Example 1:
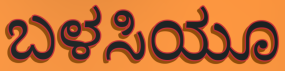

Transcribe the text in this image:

ಬಳಸಿಯೂ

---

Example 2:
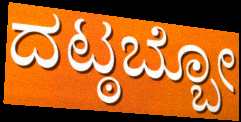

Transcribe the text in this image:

ದಟ್ಠಬ್ಬೋ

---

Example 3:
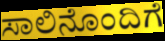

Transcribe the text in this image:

ಸಾಲಿನೊಂದಿಗೆ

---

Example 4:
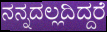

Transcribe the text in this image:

ನನ್ನದಲ್ಲದಿದ್ದರೆ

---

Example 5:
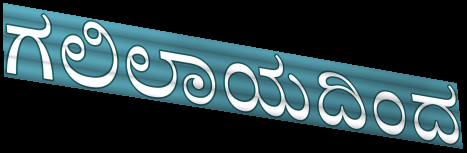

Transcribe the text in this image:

ಗಲಿಲಾಯದಿಂದ